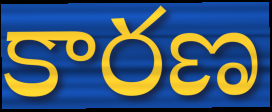
కారణ